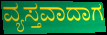
ವ್ಯಸ್ತವಾದಾಗ